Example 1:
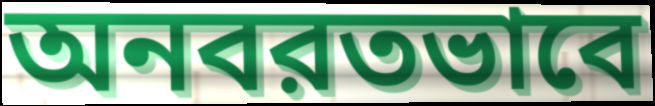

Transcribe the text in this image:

অনবরতভাবে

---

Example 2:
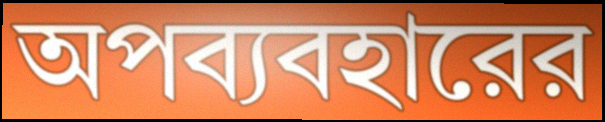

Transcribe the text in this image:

অপব্যবহারের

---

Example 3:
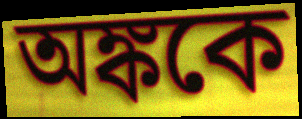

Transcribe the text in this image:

অঙ্ককে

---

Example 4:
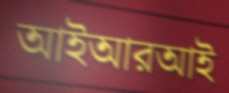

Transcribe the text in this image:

আইআরআই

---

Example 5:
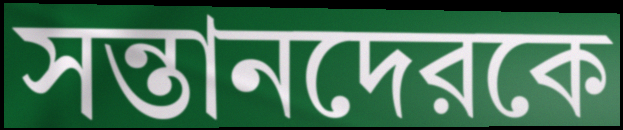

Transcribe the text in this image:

সন্তানদেরকে